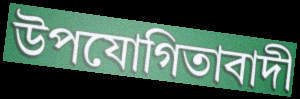
উপযোগিতাবাদী